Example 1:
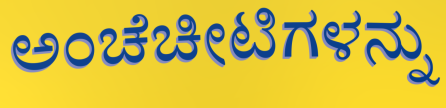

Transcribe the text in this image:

ಅಂಚೆಚೀಟಿಗಳನ್ನು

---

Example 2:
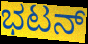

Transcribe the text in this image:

ಭಟನ್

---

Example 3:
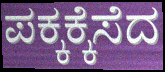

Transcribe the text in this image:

ಪಕ್ಕಕ್ಕೆಸೆದ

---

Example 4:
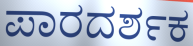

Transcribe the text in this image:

ಪಾರದರ್ಶಕ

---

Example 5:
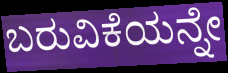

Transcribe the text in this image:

ಬರುವಿಕೆಯನ್ನೇ